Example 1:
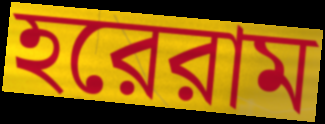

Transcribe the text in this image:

হরেরাম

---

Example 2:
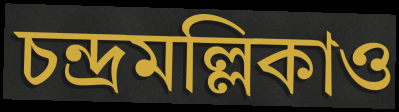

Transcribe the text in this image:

চন্দ্রমল্লিকাও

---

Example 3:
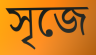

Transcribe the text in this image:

সৃজে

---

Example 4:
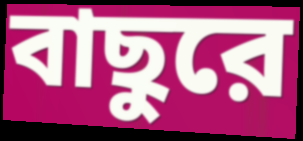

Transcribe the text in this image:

বাছুরে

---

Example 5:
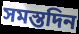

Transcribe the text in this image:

সমস্তদিন